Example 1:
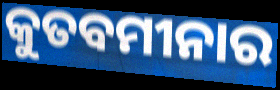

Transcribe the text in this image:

କୁତବମୀନାର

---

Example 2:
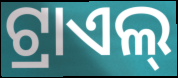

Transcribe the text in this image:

ଟ୍ରାଏଲ୍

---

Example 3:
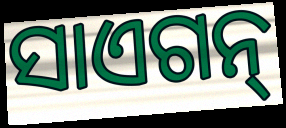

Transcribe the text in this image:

ସାଏଗନ୍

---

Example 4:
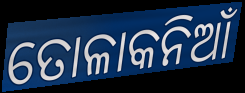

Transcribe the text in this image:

ତୋଳାକନିଆଁ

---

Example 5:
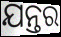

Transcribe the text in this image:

ଯନ୍ତର